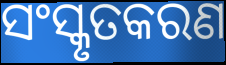
ସଂସ୍କୃତକରଣ